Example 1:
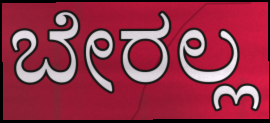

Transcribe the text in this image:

ಬೇರಲ್ಲ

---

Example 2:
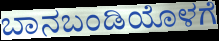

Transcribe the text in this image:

ಬಾನಬಂಡಿಯೊಳಗೆ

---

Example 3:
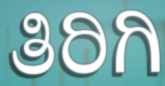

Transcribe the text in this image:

ತಿರಿಗಿ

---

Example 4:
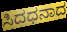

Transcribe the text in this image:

ಸಿದಧನಾದ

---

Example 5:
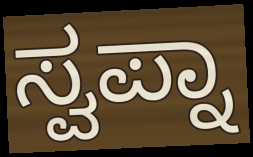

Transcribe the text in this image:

ಸ್ವಪ್ನಾ